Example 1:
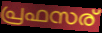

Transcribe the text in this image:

പ്രഫസര്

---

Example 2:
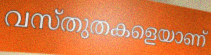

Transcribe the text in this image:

വസ്തുതകളെയാണ്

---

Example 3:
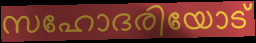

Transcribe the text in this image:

സഹോദരിയോട്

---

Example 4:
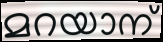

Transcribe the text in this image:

മറയാന്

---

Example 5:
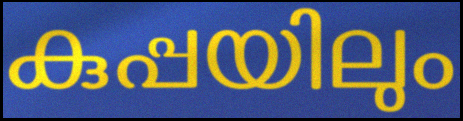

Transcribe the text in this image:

കുപ്പയിലും